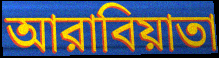
আরাবিয়াতা